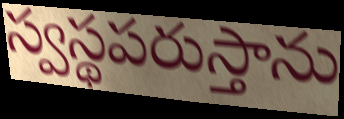
స్వస్థపరుస్తాను